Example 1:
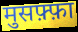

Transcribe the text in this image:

मुसफ़्फ़ा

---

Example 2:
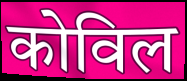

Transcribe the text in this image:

कोविल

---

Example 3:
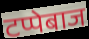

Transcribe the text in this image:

टप्पेबाज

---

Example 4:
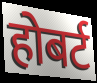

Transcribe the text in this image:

होबर्ट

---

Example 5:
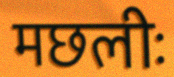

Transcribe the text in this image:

मछलीः